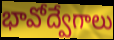
భావోద్వేగాలు